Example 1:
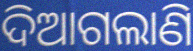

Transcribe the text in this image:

ଦିଆଗଲାଣି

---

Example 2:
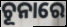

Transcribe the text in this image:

ଚୂନାରେ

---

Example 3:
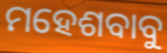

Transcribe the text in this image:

ମହେଶବାବୁ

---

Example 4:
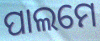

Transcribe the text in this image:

ପାଲମେ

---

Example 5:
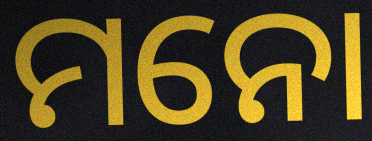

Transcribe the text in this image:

ମନୋ